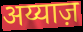
अय्याज़